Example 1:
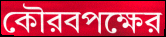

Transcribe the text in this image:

কৌরবপক্ষের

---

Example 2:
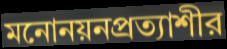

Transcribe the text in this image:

মনোনয়নপ্রত্যাশীর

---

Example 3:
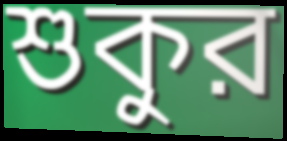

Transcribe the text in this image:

শুকুর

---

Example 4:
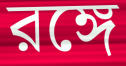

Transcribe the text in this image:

রঙ্গে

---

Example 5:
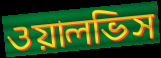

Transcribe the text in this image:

ওয়ালভিস